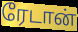
ரேடான்